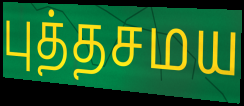
புத்தசமய